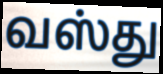
வஸ்து